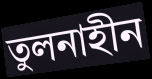
তুলনাহীন